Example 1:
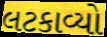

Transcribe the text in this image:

લટકાવ્યો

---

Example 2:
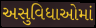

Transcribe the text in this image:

અસુવિધાઓમાં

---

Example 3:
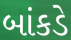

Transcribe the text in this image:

બાંકડે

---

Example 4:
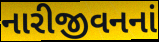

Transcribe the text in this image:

નારીજીવનનાં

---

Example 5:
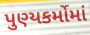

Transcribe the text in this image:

પુણ્યકર્મોમાં